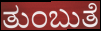
ತುಂಬುತೆ